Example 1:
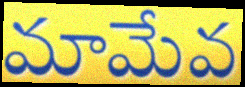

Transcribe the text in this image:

మామేవ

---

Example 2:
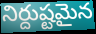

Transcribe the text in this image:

నిర్దుష్టమైన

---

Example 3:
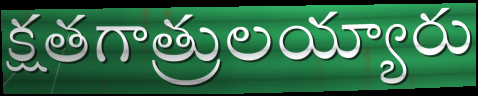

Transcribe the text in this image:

క్షతగాత్రులయ్యారు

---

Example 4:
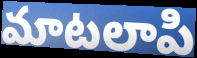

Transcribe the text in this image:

మాటలాపి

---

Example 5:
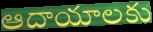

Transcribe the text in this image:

ఆదాయాలకు